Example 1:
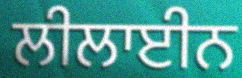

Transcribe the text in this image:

ਲੀਲਾਈਨ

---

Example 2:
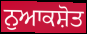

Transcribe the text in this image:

ਨੁਆਕਸ਼ੋਤ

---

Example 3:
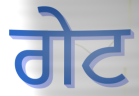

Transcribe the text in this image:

ਗੇਟ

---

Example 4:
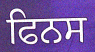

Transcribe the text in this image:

ਫਿਨਸ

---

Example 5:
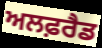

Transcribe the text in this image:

ਅਲਫ਼ਰੈਡ